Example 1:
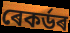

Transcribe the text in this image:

ৰেকৰ্ডৰ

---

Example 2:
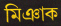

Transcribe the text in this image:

মিঞাক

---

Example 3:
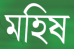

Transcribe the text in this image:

মহিষ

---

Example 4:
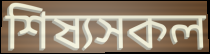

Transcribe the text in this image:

শিষ্যসকল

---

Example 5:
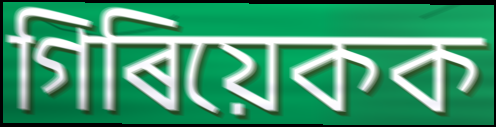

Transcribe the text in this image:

গিৰিয়েকক